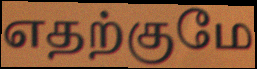
எதற்குமே